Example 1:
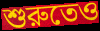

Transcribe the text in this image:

শুরুতেও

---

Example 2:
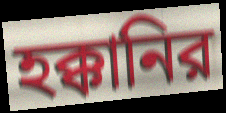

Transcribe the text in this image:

হক্কানির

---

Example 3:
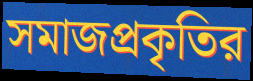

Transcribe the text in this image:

সমাজপ্রকৃতির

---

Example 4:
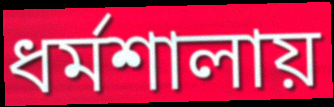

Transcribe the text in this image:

ধর্মশালায়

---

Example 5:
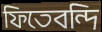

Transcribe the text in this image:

ফিতেবন্দি